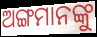
ଅଙ୍ଗମାନଙ୍କୁ